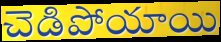
చెడిపోయాయి